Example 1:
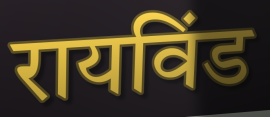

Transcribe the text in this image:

रायविंड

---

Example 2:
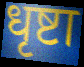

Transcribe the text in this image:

धृष्टा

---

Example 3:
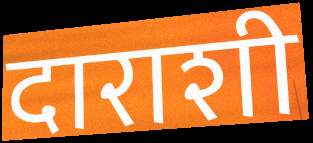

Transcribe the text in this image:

दाराशी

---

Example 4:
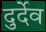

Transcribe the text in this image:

दुर्देव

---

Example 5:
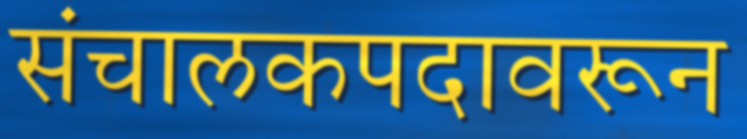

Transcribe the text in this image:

संचालकपदावरून